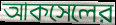
আকসেলের